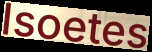
Isoetes